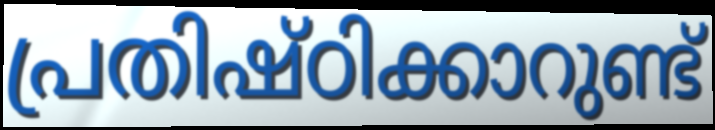
പ്രതിഷ്ഠിക്കാറുണ്ട്